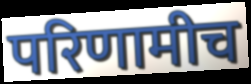
परिणामीच